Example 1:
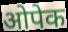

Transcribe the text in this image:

ओपेक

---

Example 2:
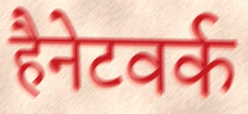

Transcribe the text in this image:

हैनेटवर्क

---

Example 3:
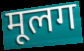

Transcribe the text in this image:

मूलग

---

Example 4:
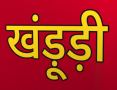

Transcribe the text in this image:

खंड़ूड़ी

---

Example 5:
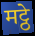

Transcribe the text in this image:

मट्ठे